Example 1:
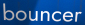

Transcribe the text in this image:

bouncer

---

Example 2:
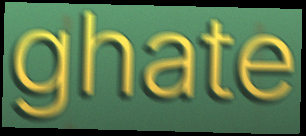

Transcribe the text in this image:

ghate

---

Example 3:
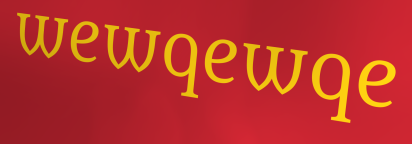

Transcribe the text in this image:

wewqewqe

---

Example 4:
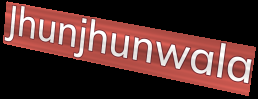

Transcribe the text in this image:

Jhunjhunwala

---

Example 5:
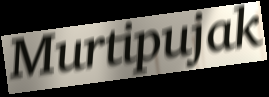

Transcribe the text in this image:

Murtipujak